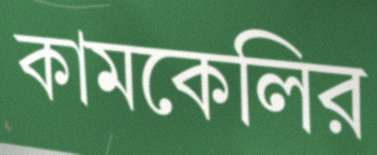
কামকেলির